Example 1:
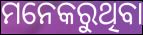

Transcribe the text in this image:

ମନେକରୁଥିବା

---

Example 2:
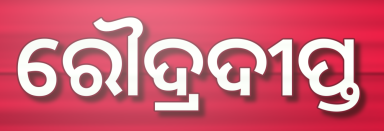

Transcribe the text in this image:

ରୌଦ୍ରଦୀପ୍ତ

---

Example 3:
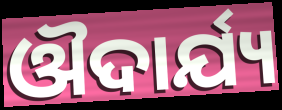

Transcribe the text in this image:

ଔଦାର୍ଯ୍ୟ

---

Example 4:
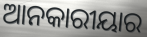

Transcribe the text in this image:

ଆନକାରୀୟାର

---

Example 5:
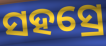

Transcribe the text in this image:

ସହସ୍ରେ